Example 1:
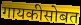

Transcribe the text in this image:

गायकीसोबत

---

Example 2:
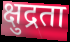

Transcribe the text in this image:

क्षुद्रता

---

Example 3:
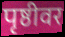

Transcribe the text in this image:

पृष्ठीवर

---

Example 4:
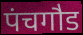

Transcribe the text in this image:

पंचगौड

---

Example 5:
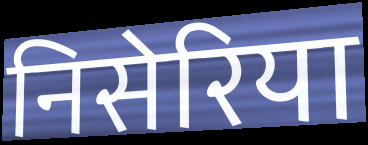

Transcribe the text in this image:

निसेरिया